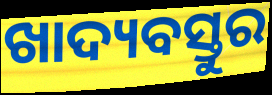
ଖାଦ୍ୟବସ୍ତୁର